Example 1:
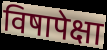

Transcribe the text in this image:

विषापेक्षा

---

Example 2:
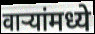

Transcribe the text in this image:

वाऱ्यांमध्ये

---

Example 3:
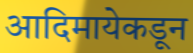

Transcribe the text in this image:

आदिमायेकडून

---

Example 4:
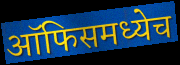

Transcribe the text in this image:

ऑफिसमध्येच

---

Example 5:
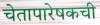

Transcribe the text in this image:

चेतापारेषकची